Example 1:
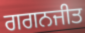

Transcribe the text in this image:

ਗਗਨਜੀਤ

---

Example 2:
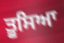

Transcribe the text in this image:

ਤੂਸਿਆ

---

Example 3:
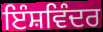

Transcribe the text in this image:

ਇੰਸ਼ਵਿੰਦਰ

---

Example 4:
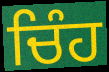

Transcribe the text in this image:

ਚਿੰਹ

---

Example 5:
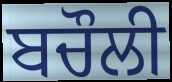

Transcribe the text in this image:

ਬਚੌਲੀ